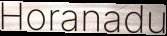
Horanadu